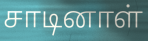
சாடினாள்